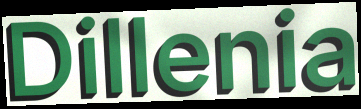
Dillenia